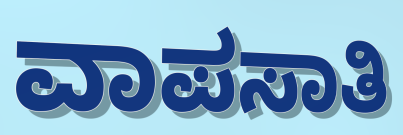
ವಾಪಸಾತಿ